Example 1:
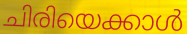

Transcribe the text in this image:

ചിരിയെക്കാൾ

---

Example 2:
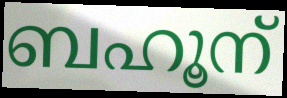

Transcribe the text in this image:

ബഹൂന്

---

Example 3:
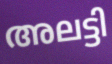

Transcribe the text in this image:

അലട്ടി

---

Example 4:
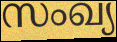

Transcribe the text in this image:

സംഖ്യ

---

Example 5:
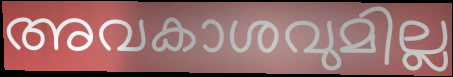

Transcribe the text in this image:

അവകാശവുമില്ല